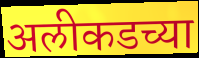
अलीकडच्या